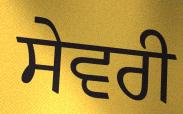
ਸੇਵਰੀ